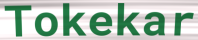
Tokekar